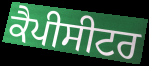
ਕੈਪੀਸੀਟਰ